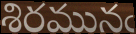
శిరమునఁ